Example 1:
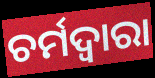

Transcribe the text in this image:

ଚର୍ମଦ୍ଵାରା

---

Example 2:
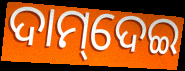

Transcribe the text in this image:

ଦାମ୍‌ଦେଇ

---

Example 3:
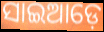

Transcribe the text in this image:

ସାଇଆଡ଼େ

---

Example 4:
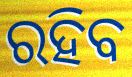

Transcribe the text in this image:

ରହିବ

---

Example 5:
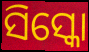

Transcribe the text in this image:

ସିସ୍କୋ